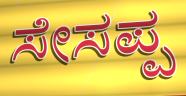
ಸೇಸಪ್ಪ